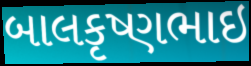
બાલકૃષ્ણભાઇ